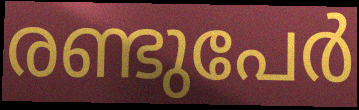
രണ്ടുപേർ